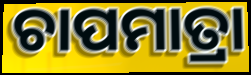
ଚାପମାତ୍ରା